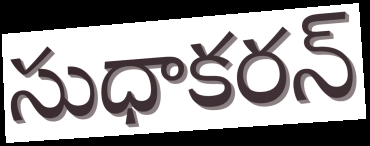
సుధాకరన్